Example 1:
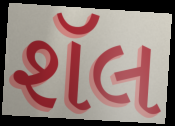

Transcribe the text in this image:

શૅલ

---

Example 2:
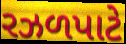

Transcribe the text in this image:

રઝળપાટે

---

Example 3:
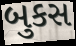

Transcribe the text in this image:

બુકસ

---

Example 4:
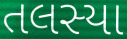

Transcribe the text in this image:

તલસ્યા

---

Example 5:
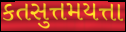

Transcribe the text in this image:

કતસુત્તમયત્તા